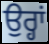
ਉਰ੍ਹਾਂ